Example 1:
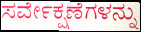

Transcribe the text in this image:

ಸರ್ವೇಕ್ಷಣೆಗಳನ್ನು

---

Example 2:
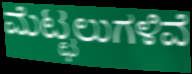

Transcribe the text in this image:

ಮೆಟ್ಟಲುಗಳಿವೆ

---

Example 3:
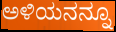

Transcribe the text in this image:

ಅಳಿಯನನ್ನೂ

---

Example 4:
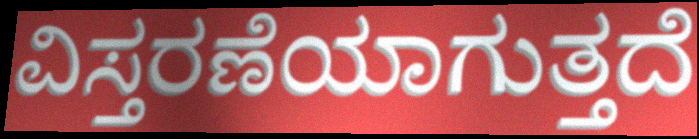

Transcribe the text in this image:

ವಿಸ್ತರಣೆಯಾಗುತ್ತದೆ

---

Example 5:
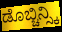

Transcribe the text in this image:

ಡೊಬ್ಚಿನ್ಸ್ಕಿ